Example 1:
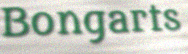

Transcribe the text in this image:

Bongarts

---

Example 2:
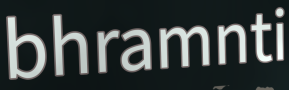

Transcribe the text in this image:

bhramnti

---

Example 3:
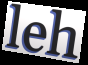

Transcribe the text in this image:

leh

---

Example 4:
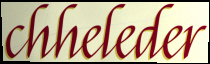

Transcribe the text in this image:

chheleder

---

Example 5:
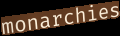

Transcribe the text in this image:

monarchies